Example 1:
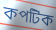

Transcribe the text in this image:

কপটিক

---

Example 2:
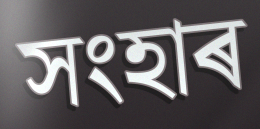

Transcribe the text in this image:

সংহাৰ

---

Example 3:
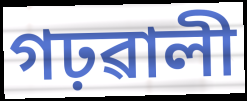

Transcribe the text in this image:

গঢ়ৱালী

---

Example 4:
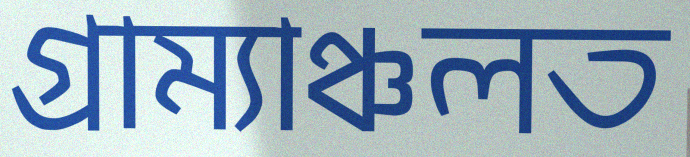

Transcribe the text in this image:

গ্ৰাম্যাঞ্চলত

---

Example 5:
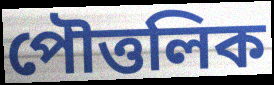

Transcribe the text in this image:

পৌত্তলিক